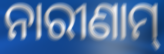
ନାରୀଣାମ୍